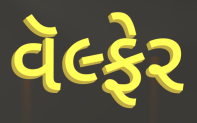
વૅલ્ફેર